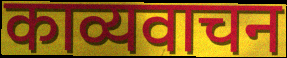
काव्यवाचन